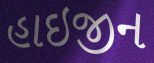
હાઇજીન